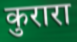
कुरारा